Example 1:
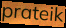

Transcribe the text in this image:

prateik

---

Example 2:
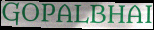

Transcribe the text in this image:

GOPALBHAI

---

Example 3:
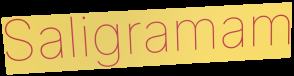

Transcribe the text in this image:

Saligramam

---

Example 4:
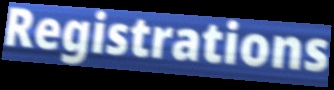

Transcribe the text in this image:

Registrations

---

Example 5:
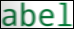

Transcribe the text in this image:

abel